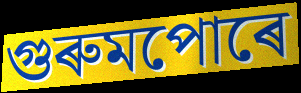
গুৰুমপোৰে